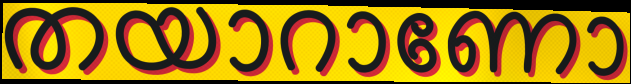
തയാറാണോ